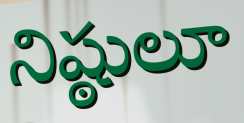
నిష్ఠులూ